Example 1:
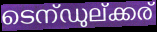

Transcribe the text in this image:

ടെന്ഡുല്ക്കര്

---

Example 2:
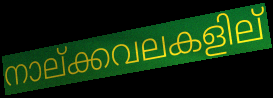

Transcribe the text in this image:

നാല്ക്കവലകളില്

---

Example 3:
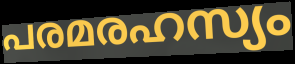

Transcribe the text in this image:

പരമരഹസ്യം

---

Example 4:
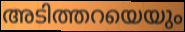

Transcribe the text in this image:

അടിത്തറയെയും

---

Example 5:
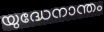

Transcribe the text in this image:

യുദ്ധേനാന്തം